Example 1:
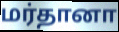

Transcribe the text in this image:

மர்தானா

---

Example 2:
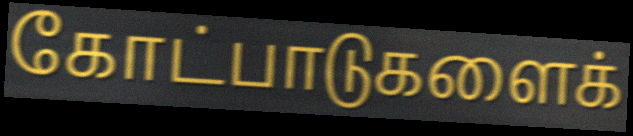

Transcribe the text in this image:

கோட்பாடுகளைக்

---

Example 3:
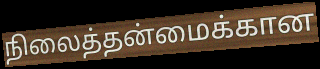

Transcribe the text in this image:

நிலைத்தன்மைக்கான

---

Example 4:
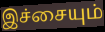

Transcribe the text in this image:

இச்சையும்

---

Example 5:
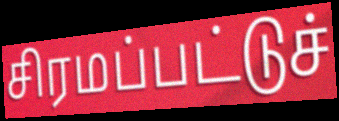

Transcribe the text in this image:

சிரமப்பட்டுச்